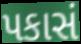
પકાસં